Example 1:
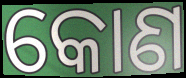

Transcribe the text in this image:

କୋଣ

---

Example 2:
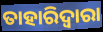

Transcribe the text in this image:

ତାହାରିଦ୍ଵାରା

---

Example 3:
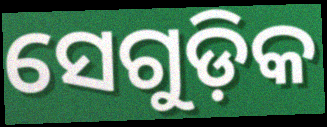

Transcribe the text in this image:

ସେଗୁଡ଼ିକ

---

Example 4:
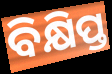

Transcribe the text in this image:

ବିକ୍ଷିପ୍ତ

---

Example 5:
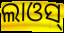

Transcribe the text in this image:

ଲାଓସ୍